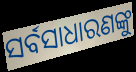
ସର୍ବସାଧାରଣଙ୍କୁ